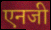
एनजी